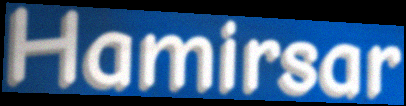
Hamirsar